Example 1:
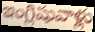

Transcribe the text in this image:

ఇంగ్లిషువాళ్లు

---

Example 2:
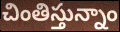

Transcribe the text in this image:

చింతిస్తున్నాం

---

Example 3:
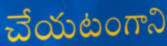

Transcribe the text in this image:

చేయటంగాని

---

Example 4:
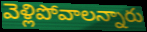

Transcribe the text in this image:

వెళ్లిపోవాలన్నారు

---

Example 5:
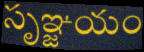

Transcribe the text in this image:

సృఞ్జయం